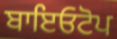
ਬਾਇਓਟੋਪ